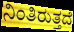
ನಿಂತಿರುತ್ತದೆ